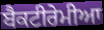
ਬੈਕਟੀਰੇਮੀਆ